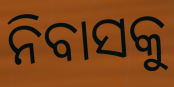
ନିବାସକୁ